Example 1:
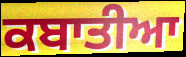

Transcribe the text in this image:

ਕਬਾਤੀਆ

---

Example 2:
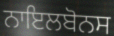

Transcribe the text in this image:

ਨਾਇਲਬੋਨਸ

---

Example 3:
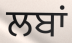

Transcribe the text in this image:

ਲਬਾਂ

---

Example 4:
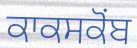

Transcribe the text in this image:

ਕਾਕਸਕੋਂਬ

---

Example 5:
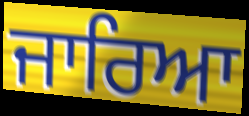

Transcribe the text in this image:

ਜਾਰਿਆ